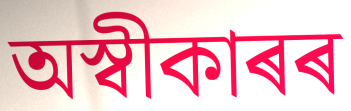
অস্বীকাৰৰ